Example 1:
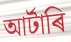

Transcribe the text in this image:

আৰ্টাৰি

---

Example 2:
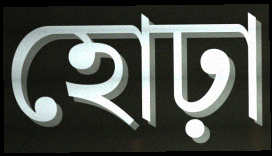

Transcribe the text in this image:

হোঢ়া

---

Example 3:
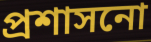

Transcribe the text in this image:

প্ৰশাসনো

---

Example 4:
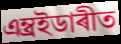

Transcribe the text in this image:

এম্ব্ৰইডাৰীত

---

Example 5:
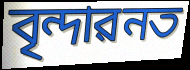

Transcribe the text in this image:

বৃন্দাৱনত